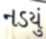
નડયું